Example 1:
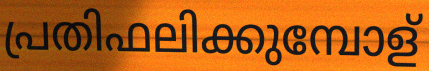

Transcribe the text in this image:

പ്രതിഫലിക്കുമ്പോള്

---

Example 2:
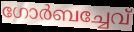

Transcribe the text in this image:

ഗോർബച്ചേവ്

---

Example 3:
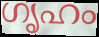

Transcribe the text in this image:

ഗൃഹം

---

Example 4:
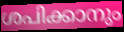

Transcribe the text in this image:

ശപിക്കാനും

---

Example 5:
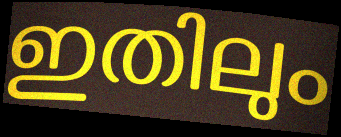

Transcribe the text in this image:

ഇതിലും